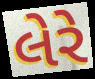
લેરે